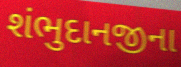
શંભુદાનજીના